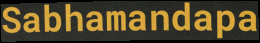
Sabhamandapa